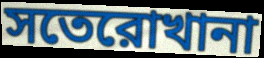
সতেরোখানা